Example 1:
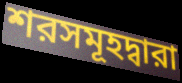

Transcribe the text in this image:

শরসমূহদ্বারা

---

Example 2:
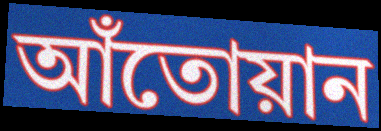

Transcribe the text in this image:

আঁতোয়ান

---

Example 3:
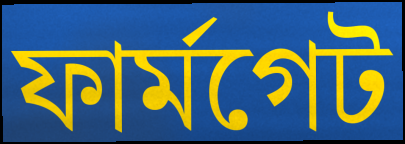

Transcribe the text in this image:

ফার্মগেট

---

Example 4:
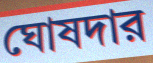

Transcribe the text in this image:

ঘোষদার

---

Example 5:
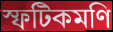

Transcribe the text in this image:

স্ফটিকমণি